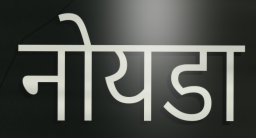
नोयडा